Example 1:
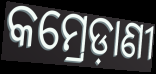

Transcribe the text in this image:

କମ୍ରେଡ଼ାଣୀ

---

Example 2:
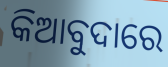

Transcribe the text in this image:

କିଆବୁଦାରେ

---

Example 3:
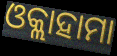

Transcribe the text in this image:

ଓକ୍ଲାହାମା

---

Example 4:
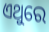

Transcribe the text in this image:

ଏଥୁରେ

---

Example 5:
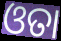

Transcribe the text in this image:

ଓତା